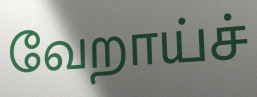
வேறாய்ச்